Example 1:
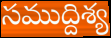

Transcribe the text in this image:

సముద్దిశ్య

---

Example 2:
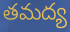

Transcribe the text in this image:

తమద్య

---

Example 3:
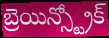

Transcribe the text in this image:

బ్రెయిన్స్ట్రోక్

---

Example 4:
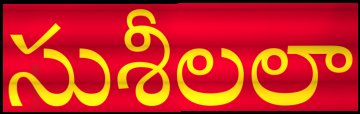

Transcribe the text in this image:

సుశీలలా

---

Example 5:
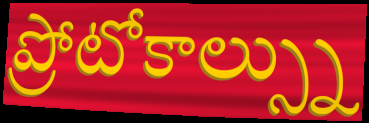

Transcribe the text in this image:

ప్రోటోకాల్స్ను